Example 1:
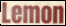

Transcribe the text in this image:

Lemon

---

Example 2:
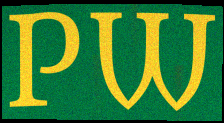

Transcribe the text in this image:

PW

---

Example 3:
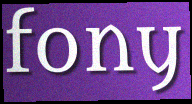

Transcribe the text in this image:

fony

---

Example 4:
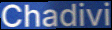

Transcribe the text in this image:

Chadivi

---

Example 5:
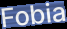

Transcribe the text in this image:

Fobia